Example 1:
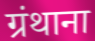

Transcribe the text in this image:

ग्रंथाना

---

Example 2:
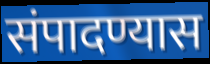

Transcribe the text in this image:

संपादण्यास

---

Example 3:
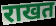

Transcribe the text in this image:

राखत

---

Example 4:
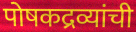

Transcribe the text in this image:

पोषकद्रव्यांची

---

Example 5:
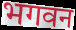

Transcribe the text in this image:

भगवन